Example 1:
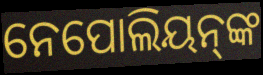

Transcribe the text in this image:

ନେପୋଲିୟନ୍‍ଙ୍କ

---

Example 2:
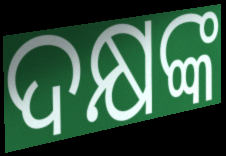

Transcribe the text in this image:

ଦକ୍ଷଙ୍କ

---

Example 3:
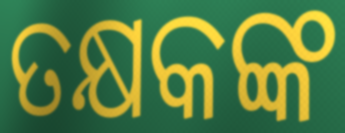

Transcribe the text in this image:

ତକ୍ଷକଙ୍କ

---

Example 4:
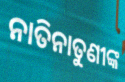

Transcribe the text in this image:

ନାତିନାତୁଣୀଙ୍କ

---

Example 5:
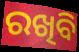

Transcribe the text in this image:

ରଖିବି